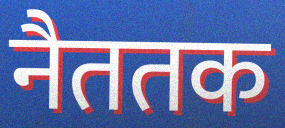
नैततक